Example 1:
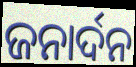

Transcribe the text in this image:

ଜନାର୍ଦନ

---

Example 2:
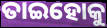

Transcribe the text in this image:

ତାଇହୋକୁ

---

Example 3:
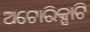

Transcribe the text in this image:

ଅଟୋରିକ୍ସାଟି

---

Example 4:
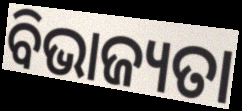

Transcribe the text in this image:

ବିଭାଜ୍ୟତା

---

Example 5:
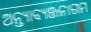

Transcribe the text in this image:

ଅନ୍ତ୍ୟାବ୍ୟଞ୍ଜନାଗମ